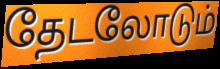
தேடலோடும்